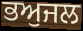
ਭਅੁਜਲ